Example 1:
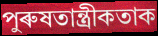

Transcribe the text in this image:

পুৰুষতান্ত্ৰীকতাক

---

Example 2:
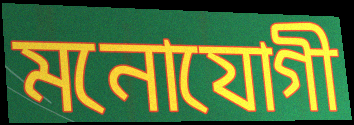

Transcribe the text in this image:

মনোযোগী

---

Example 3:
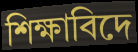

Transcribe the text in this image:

শিক্ষাবিদে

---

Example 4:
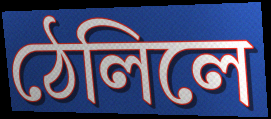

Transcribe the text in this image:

ঠেলিলে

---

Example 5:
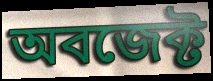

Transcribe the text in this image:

অবজেক্ট